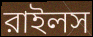
রাইলস